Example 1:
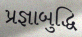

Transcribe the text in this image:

પ્રજ્ઞાબુદ્ધિ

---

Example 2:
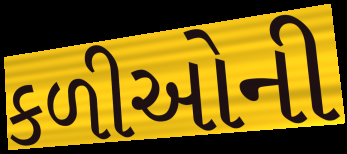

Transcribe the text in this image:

કળીઓની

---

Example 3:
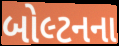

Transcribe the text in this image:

બોલ્ટનના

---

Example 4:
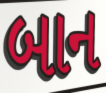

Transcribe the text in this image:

બાન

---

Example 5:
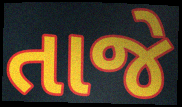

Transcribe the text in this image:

તાજે